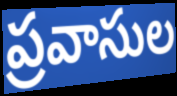
ప్రవాసుల